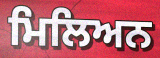
ਮਿਲਿਅਨ